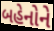
બહેનોને